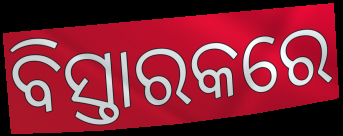
ବିସ୍ତାରକରେ